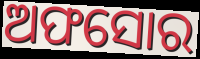
ଅଫସୋର